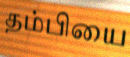
தம்பியை